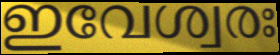
ഇവേശ്വരഃ